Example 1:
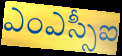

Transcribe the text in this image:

ఎంఎస్సీఐ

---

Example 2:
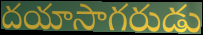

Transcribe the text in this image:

దయాసాగరుడు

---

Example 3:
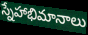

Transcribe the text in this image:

స్నేహాభిమానాలు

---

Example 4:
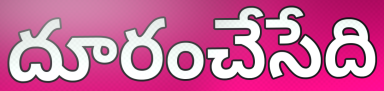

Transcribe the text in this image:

దూరంచేసేది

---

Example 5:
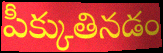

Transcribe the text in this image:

పీక్కుతినడం